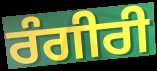
ਰੰਗੀਰੀ